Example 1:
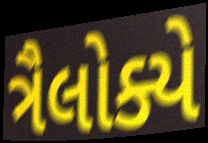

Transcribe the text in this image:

ત્રૈલોક્યે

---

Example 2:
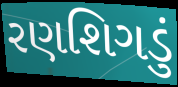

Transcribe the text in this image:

રણશિગડું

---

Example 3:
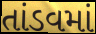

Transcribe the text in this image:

તાંડવમાં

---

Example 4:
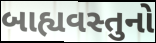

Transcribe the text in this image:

બાહ્યવસ્તુનો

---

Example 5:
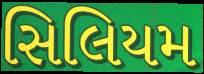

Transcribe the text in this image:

સિલિયમ